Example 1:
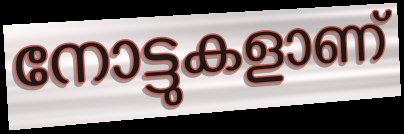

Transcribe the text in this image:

നോട്ടുകളാണ്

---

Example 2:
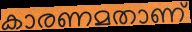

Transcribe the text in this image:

കാരണമതാണ്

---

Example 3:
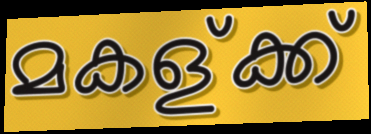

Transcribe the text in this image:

മകള്ക്ക്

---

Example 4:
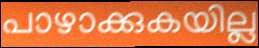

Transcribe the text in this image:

പാഴാക്കുകയില്ല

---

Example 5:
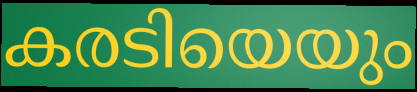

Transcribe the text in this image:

കരടിയെയും